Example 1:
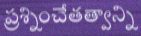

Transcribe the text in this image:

ప్రశ్నించేతత్వాన్ని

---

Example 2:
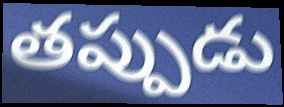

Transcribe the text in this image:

తప్పుడు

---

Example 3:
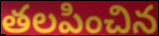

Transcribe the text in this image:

తలపించిన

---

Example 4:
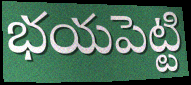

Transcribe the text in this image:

భయపెట్టి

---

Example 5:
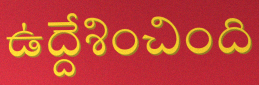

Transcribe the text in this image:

ఉద్దేశించింది